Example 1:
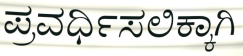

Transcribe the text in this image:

ಪ್ರವರ್ಧಿಸಲಿಕ್ಕಾಗಿ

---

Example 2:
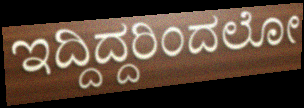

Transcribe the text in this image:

ಇದ್ದಿದ್ದರಿಂದಲೋ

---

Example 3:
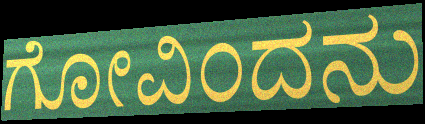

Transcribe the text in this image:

ಗೋವಿಂದನು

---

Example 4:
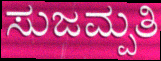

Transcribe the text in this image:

ಸುಜಮ್ಪತಿ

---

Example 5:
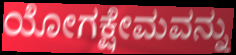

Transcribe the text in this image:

ಯೋಗಕ್ಷೇಮವನ್ನು